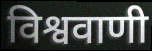
विश्ववाणी